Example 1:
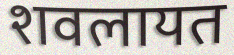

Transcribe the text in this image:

शवलायत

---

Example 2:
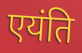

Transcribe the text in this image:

एयंति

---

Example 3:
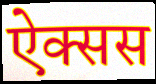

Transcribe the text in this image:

ऐक्सस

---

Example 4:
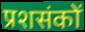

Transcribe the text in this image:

प्रशसंकों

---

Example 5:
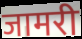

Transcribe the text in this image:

जामरी